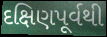
દક્ષિણપૂર્વથી